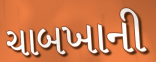
ચાબખાની